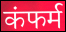
कंफर्म